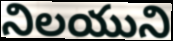
నిలయుని